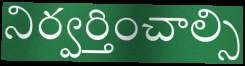
నిర్వర్తించాల్సి